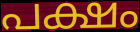
പക്ഷം